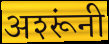
अश्रूंनी